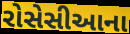
રોસેસીઆના